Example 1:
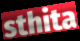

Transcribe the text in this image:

sthita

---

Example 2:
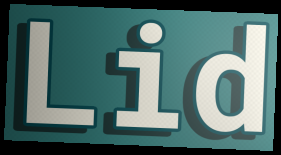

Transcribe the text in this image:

Lid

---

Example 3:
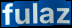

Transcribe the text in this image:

fulaz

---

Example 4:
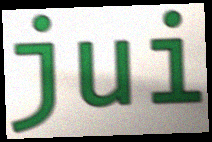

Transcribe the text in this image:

jui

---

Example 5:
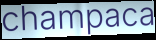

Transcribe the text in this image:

champaca